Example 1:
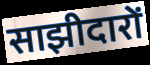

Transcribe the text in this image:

साझीदारों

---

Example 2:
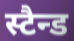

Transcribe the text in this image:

स्टैन्ड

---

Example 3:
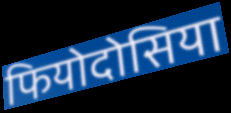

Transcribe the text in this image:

फियोदोसिया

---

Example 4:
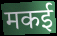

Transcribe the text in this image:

मकई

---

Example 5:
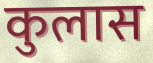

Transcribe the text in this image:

कुलास